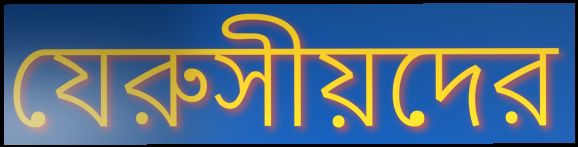
যেরুসীয়দের